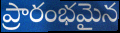
ప్రారంభమైన